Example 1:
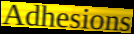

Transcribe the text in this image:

Adhesions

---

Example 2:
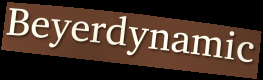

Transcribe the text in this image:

Beyerdynamic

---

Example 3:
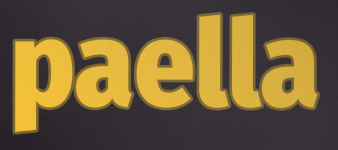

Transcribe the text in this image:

paella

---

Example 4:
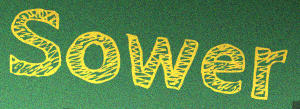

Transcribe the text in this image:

Sower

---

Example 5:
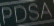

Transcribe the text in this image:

PDSA